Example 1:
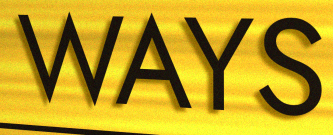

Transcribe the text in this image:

WAYS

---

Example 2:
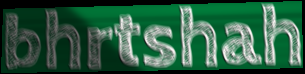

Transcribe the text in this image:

bhrtshah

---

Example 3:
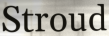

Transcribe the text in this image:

Stroud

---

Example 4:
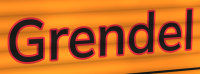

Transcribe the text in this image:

Grendel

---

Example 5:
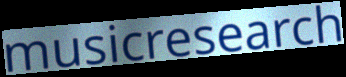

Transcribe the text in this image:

musicresearch